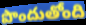
పొందుతోంది